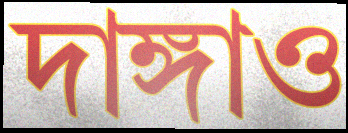
দাঙ্গাও